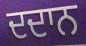
ਦਦਾਨ